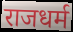
राजधर्म